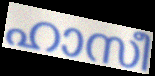
ഹാസീ